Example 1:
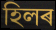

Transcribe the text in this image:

হিলৰ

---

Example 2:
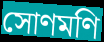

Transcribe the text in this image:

সোণমণি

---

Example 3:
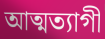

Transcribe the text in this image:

আত্মত্যাগী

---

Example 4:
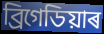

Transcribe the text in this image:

ব্ৰিগেডিয়াৰ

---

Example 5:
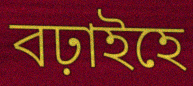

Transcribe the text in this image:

বঢ়াইহে